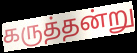
கருத்தன்று